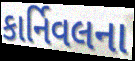
કાર્નિવલના